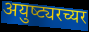
अयुष्ट्यरच्यर